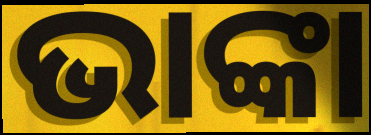
ଭାଙ୍କା